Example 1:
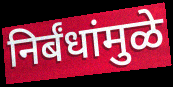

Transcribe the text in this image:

निर्बंधांमुळे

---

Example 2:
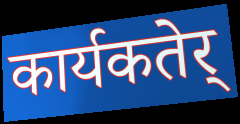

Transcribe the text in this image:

कार्यकतेर्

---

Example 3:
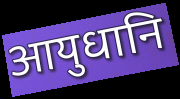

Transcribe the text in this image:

आयुधानि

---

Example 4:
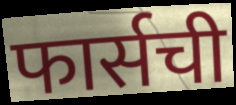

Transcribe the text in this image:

फार्सची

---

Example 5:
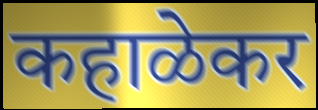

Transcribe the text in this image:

कहाळेकर